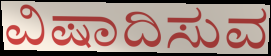
ವಿಷಾದಿಸುವ